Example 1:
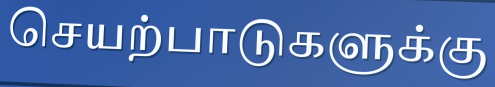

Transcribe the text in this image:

செயற்பாடுகளுக்கு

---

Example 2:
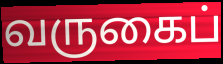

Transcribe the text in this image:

வருகைப்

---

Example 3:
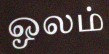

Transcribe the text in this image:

ஓலம்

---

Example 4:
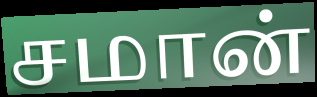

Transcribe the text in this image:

சமான்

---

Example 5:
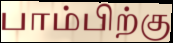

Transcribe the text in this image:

பாம்பிற்கு